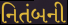
નિતંબની